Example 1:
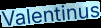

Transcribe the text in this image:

Valentinus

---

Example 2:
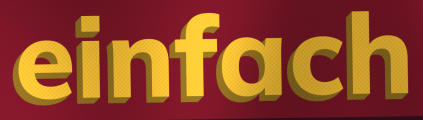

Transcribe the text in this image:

einfach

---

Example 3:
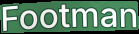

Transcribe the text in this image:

Footman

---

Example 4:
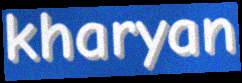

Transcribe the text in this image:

kharyan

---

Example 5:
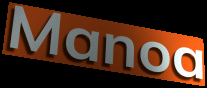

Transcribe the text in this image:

Manoa